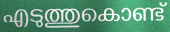
എടുത്തുകൊണ്ട്